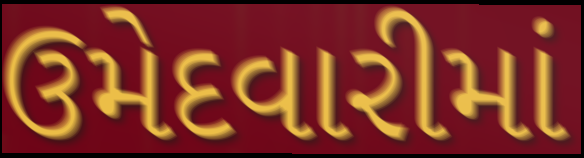
ઉમેદવારીમાં